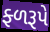
ફ્ળરૂપે